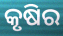
କୃଷିର